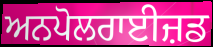
ਅਨਪੋਲਰਾਈਜ਼ਡ